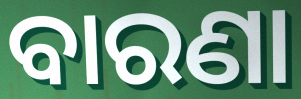
ବାରଣା